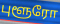
புளூரோ